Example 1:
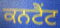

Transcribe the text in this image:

ਕਨਟੈਂਟ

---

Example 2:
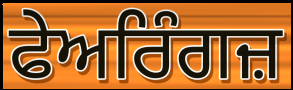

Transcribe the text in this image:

ਫੇਅਰਿੰਗਜ਼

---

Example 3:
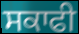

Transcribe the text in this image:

ਸਕਾਫੀ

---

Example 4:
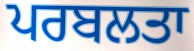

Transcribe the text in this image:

ਪਰਬਲਤਾ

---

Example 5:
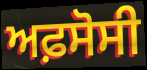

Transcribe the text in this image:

ਅਫ਼ਸੋਸੀ